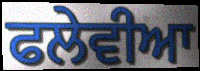
ਫਲੇਵੀਆ